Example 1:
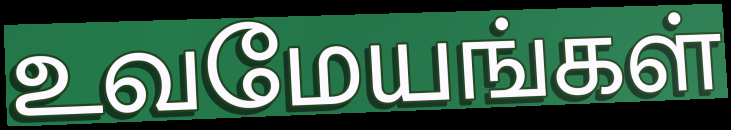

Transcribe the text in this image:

உவமேயங்கள்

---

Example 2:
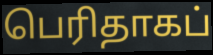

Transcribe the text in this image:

பெரிதாகப்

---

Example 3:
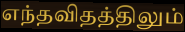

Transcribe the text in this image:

எந்தவிதத்திலும்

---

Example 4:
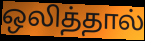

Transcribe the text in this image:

ஒலித்தால்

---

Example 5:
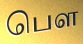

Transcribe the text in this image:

பெள